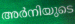
അർനിയുടെ